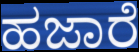
ಹಜಾರೆ